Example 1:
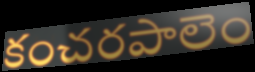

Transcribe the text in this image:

కంచరపాలెం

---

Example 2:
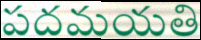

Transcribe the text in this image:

పదమయతి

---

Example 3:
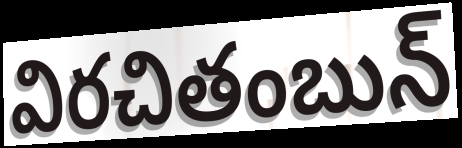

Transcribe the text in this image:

విరచితంబున్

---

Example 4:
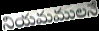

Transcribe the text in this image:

నియమములనే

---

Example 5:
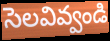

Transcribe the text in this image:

సెలవివ్వండి